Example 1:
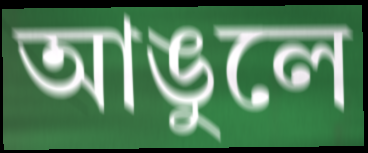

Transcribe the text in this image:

আঙুলে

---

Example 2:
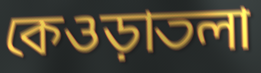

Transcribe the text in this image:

কেওড়াতলা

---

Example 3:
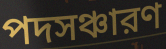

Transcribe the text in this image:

পদসঞ্চারণ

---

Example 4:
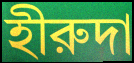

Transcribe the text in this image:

হীরুদা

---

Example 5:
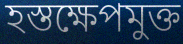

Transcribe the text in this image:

হস্তক্ষেপমুক্ত